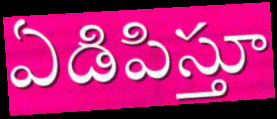
ఏడిపిస్తూ